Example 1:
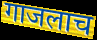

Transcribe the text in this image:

गाजलाच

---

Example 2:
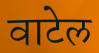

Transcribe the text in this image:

वाटेल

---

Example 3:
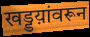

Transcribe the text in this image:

खड्डय़ांवरून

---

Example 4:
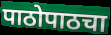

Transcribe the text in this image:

पाठोपाठचा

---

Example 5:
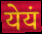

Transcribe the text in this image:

येयं